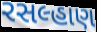
રસલ્હાણ